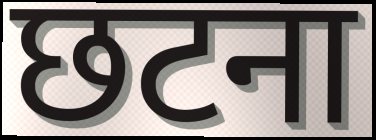
छटना